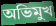
অভিমুখ